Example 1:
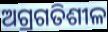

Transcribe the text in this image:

ଅଗ୍ରଗତିଶୀଳ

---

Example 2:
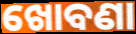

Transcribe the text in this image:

ଖୋବଣା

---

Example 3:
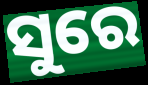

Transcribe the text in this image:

ସୁରେ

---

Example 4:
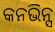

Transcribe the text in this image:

କନଭିନ୍ସ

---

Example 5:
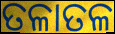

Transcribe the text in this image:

ତଳାତଳ